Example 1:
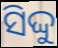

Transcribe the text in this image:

ସିଦ୍ଦୁ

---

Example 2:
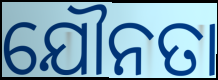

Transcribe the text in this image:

ଯୌନତା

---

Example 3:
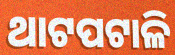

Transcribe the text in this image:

ଥାଟପଟାଳି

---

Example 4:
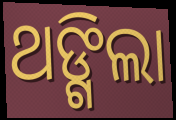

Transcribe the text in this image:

ଥଙ୍ଗିଲା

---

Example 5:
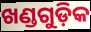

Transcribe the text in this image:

ଖଣ୍ଡଗୁଡ଼ିକ